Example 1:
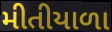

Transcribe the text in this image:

મીતીયાળા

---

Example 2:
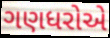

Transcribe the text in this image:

ગણધરોએ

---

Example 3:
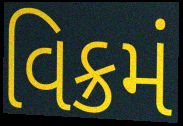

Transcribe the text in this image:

વિક્રમં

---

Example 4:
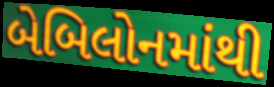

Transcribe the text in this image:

બેબિલોનમાંથી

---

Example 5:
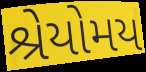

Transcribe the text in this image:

શ્રેયોમય